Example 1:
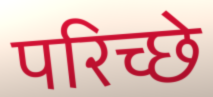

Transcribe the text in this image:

परिच्छे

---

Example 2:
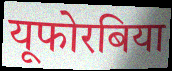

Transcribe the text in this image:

यूफोरबिया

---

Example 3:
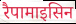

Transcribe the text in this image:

रैपामाइसिन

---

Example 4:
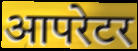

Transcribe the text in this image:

आपरेटर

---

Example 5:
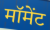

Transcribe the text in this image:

मॉमेंट